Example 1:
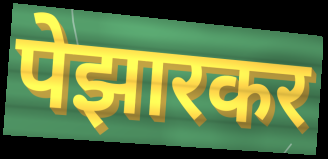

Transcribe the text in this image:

पेझारकर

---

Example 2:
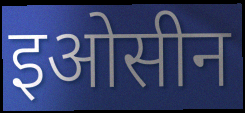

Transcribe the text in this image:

इओसीन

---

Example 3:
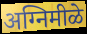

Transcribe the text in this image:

अग्निमीळे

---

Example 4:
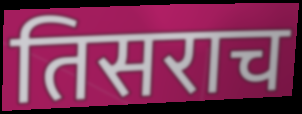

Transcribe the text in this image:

तिसराच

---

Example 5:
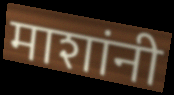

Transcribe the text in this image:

माशांनी